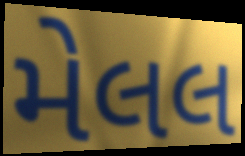
મેલલ